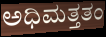
ಅಧಿಮತ್ತತಂ